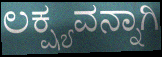
ಲಕ್ಷ್ಯವನ್ನಾಗಿ